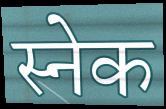
स्नेक